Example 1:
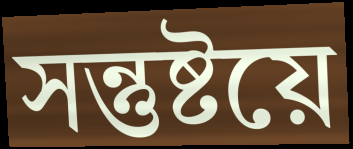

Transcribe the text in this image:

সন্তুষ্টয়ে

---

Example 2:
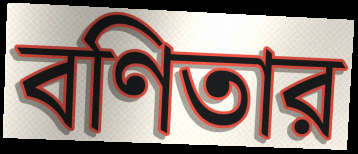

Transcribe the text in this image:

বণিতার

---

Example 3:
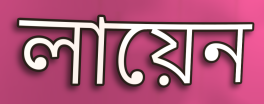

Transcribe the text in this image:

লায়েন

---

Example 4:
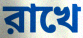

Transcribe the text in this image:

রাখে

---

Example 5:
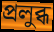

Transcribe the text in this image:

প্রলুব্ধ